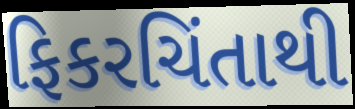
ફિકરચિંતાથી